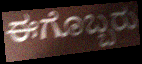
ಈಗೊಬ್ಬರು